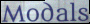
Modals